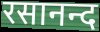
रसानन्द